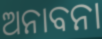
ଅନାବନା